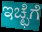
ಇಚ್ಛೆಗೆ